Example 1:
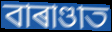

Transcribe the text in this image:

বাৰাণ্ডাত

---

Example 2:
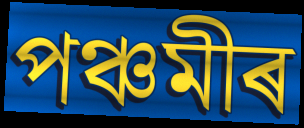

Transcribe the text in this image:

পঞ্চমীৰ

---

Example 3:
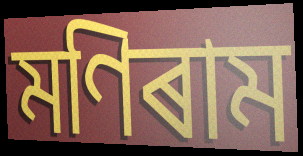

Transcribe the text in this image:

মণিৰাম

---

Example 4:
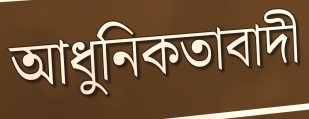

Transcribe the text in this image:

আধুনিকতাবাদী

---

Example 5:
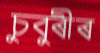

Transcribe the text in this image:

চুবুৰীৰ